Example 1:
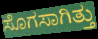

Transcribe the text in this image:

ಸೊಗಸಾಗಿತ್ತು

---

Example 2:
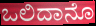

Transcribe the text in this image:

ಒಲಿದಾನೊ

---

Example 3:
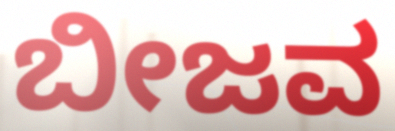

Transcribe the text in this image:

ಬೀಜವ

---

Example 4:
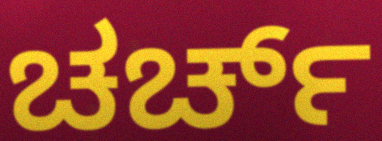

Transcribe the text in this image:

ಚರ್ಚ್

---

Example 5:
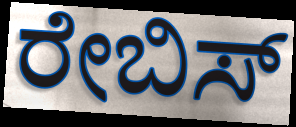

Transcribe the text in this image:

ರೇಬಿಸ್